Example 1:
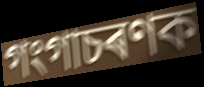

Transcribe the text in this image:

গংগাচৰণক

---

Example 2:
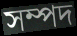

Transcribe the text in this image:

সম্পদ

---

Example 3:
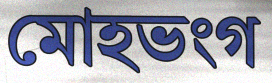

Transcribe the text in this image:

মোহভংগ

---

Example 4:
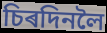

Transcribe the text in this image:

চিৰদিনলৈ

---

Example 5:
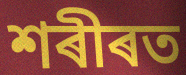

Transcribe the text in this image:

শৰীৰত